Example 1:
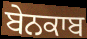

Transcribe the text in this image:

ਬੇਨਕਾਬ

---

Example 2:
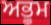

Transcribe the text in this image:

ਅਭੂਮ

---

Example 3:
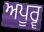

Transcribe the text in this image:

ਅਪੂਰ੍ਵ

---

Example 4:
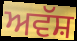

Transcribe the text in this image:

ਅਵੱਸ਼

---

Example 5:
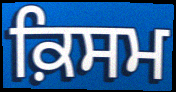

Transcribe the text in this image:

ਕ਼ਿਸਮ